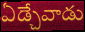
ఏడ్చేవాడు